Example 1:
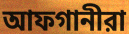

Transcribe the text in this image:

আফগানীরা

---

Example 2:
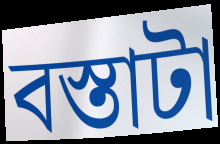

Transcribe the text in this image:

বস্তাটা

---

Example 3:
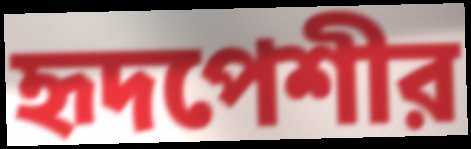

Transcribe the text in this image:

হৃদপেশীর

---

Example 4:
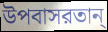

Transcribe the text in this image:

উপবাসরতান্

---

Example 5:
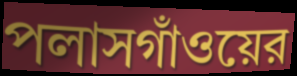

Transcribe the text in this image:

পলাসগাঁওয়ের